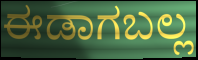
ಈಡಾಗಬಲ್ಲ